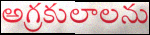
అగ్రకులాలను